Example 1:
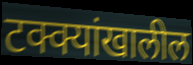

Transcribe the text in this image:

टक्क्यांखालील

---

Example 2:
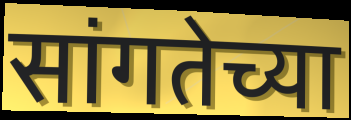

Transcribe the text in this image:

सांगतेच्या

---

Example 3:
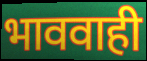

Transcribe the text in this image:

भाववाही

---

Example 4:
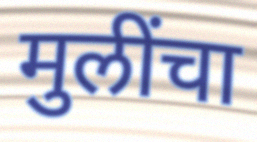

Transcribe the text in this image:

मुलींचा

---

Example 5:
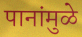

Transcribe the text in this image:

पानांमुळे